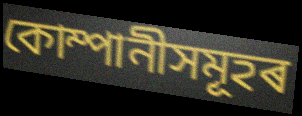
কোম্পানীসমূহৰ